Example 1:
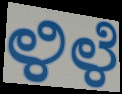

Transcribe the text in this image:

ಳಿಳೆ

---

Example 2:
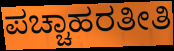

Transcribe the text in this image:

ಪಚ್ಚಾಹರತೀತಿ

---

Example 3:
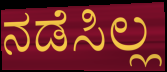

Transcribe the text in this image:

ನಡೆಸಿಲ್ಲ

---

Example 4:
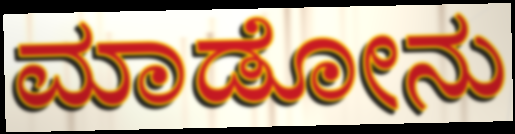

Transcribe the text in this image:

ಮಾಡೋನು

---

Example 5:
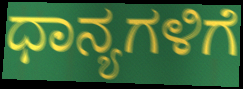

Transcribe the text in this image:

ಧಾನ್ಯಗಳಿಗೆ